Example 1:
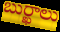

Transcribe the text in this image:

బుర్ఖాలు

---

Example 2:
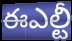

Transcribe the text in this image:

ఈఎల్టీ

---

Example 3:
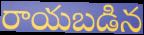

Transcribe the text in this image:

రాయబడిన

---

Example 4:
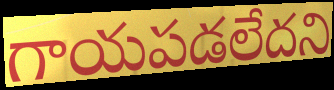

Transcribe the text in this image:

గాయపడలేదని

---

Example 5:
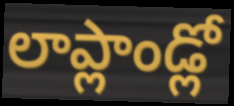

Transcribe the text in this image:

లాప్లాండ్లో